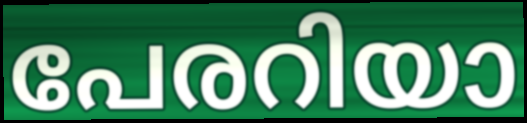
പേരറിയാ